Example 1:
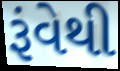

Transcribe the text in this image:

રૂંવેથી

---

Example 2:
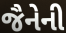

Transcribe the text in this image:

જૈનેની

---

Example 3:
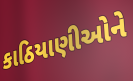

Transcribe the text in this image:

કાઠિયાણીઓને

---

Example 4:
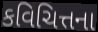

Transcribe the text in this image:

કવિચિત્તના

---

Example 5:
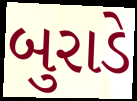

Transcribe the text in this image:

બુરાડે